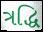
ત્રદ્ધિ